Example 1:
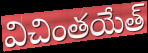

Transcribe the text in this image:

విచింతయేత్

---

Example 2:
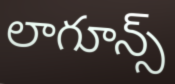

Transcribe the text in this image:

లాగూన్స్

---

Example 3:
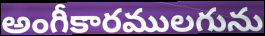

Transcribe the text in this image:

అంగీకారములగును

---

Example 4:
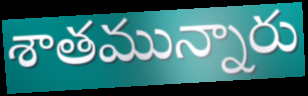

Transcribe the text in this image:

శాతమున్నారు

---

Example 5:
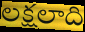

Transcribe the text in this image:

లక్షలాది